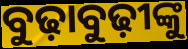
ବୁଢ଼ାବୁଢ଼ୀଙ୍କୁ